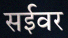
सईवर